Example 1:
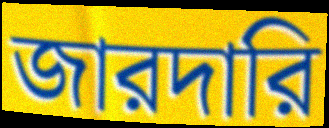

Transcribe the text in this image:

জারদারি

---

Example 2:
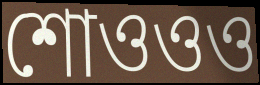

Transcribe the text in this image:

শোওওও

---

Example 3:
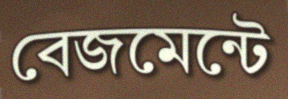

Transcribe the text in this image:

বেজমেন্টে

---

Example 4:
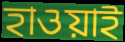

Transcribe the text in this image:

হাওয়াই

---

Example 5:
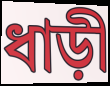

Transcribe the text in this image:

ধাড়ী